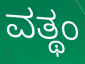
ವತ್ಥಂ